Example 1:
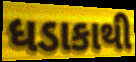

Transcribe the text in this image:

ધડાકાથી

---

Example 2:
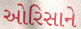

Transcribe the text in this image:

ઓરિસાને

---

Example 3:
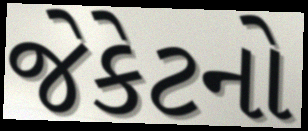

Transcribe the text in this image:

જેકેટનો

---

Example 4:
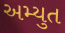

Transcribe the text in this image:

અમ્યુત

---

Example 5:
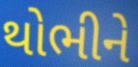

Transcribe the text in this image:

થોભીને